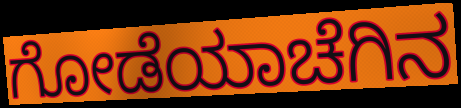
ಗೋಡೆಯಾಚೆಗಿನ